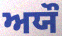
ਅਯੌ